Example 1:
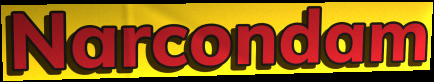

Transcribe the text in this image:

Narcondam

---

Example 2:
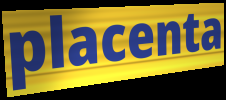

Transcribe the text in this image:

placenta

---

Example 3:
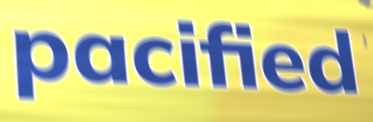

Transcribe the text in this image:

pacified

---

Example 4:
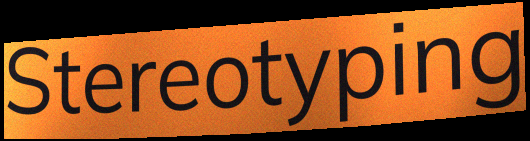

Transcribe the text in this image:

Stereotyping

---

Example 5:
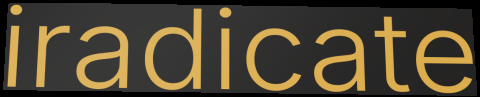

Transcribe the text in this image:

iradicate